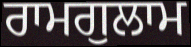
ਰਾਮਗੁਲਾਮ